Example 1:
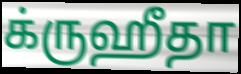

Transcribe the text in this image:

க்ருஹீதா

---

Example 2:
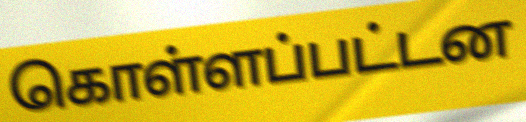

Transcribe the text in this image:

கொள்ளப்பட்டன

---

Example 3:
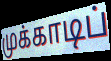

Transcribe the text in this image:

முக்காடிப்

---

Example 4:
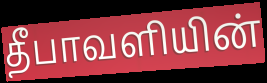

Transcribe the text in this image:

தீபாவளியின்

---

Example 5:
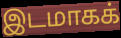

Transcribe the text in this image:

இடமாகக்